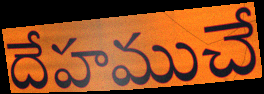
దేహముచే